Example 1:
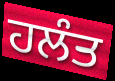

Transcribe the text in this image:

ਹਲੰਤ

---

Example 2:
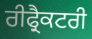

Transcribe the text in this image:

ਰੀਫ੍ਰੈਕਟਰੀ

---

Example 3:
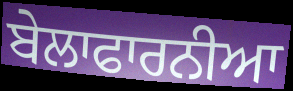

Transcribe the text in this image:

ਬੇਲਾਫਾਰਨੀਆ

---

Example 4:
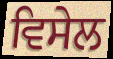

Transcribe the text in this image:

ਵਿਸੇਲ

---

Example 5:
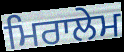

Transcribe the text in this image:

ਮਿਰਾਲੇਮ